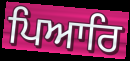
ਪਿਆਰਿ